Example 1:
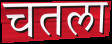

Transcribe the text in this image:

चतला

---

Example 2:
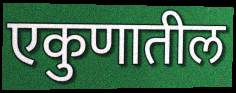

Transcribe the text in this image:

एकुणातील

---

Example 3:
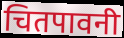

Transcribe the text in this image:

चितपावनी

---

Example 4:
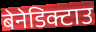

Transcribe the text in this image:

बेनेडिक्टाउ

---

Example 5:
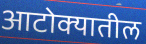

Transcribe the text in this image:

आटोक्यातील